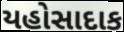
યહોસાદાક